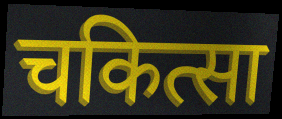
चकित्सा